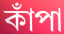
কাঁপা